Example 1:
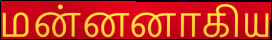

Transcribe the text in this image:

மன்னனாகிய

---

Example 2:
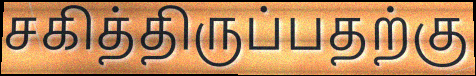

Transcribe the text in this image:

சகித்திருப்பதற்கு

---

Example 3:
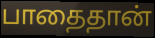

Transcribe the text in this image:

பாதைதான்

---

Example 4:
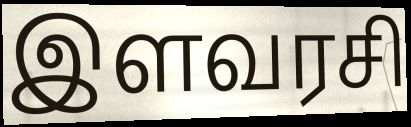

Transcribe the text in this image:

இளவரசி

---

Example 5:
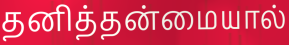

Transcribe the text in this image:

தனித்தன்மையால்